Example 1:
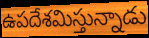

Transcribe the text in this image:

ఉపదేశమిస్తున్నాడు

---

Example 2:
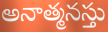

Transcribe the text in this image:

అనాత్మనస్తు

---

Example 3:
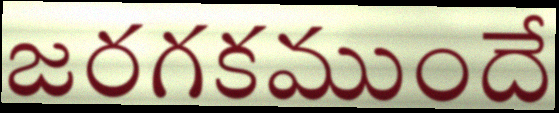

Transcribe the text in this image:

జరగకముందే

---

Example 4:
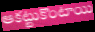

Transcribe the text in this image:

ఆకట్టుకొంటాయి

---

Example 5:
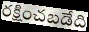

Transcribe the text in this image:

రక్షించబడేది